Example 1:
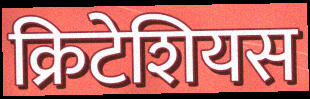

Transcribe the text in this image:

क्रिटेशियस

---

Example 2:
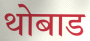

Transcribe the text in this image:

थोबाड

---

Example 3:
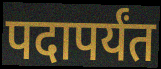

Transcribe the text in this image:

पदापर्यंत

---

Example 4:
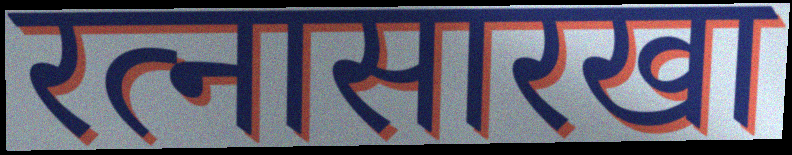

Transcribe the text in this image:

रत्नासारखा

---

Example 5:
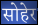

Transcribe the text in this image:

सोहेर